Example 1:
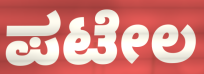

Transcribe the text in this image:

ಪಟೇಲ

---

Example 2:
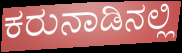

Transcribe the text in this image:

ಕರುನಾಡಿನಲ್ಲಿ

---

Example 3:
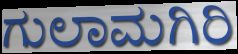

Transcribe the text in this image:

ಗುಲಾಮಗಿರಿ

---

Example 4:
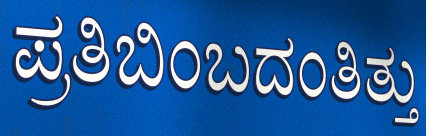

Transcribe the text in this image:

ಪ್ರತಿಬಿಂಬದಂತಿತ್ತು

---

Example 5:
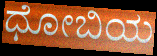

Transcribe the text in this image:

ಧೋಬಿಯ